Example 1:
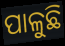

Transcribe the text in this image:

ପାଳୁଛି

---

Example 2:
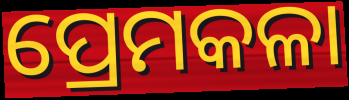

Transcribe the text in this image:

ପ୍ରେମକଳା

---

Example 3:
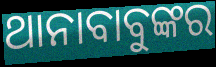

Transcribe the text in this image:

ଥାନାବାବୁଙ୍କର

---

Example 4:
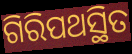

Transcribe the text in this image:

ଗିରିପଥସ୍ଥିତ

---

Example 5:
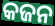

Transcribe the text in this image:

କଜନ